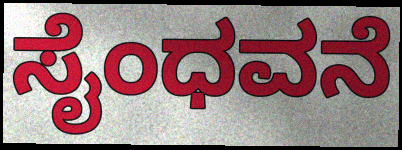
ಸೈಂಧವನೆ